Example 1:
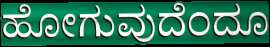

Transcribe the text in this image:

ಹೋಗುವುದೆಂದೂ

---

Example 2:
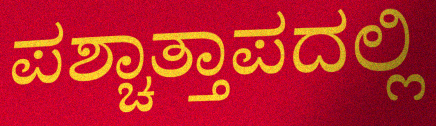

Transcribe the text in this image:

ಪಶ್ಚಾತ್ತಾಪದಲ್ಲಿ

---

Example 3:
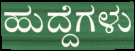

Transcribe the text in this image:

ಹುದ್ದೆಗಳು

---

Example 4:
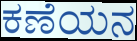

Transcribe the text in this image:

ಕಣೆಯನ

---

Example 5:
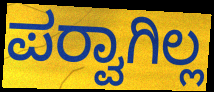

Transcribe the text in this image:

ಪರ‍್ವಾಗಿಲ್ಲ